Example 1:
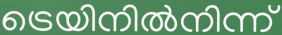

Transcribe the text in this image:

ട്രെയിനിൽനിന്ന്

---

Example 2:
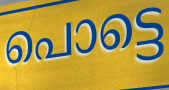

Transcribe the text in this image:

പൊട്ടെ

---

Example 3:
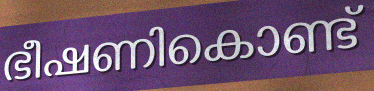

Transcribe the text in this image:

ഭീഷണികൊണ്ട്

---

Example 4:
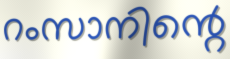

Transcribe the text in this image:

റംസാനിന്റെ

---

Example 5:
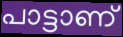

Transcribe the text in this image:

പാട്ടാണ്